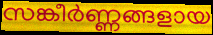
സങ്കീർണ്ണങ്ങളായ